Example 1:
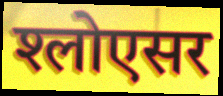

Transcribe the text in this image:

श्लोएसर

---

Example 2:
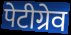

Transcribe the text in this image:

पेटीग्रेव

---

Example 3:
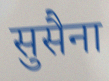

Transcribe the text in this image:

सुसैना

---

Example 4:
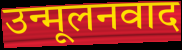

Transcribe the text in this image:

उन्मूलनवाद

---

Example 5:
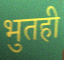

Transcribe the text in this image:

भुतही